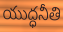
యుద్ధనీతి